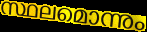
സ്ഥലമൊന്നും